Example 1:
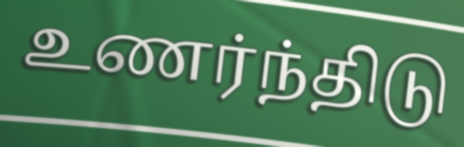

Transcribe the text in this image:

உணர்ந்திடு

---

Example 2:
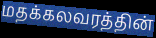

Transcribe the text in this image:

மதக்கலவரத்தின்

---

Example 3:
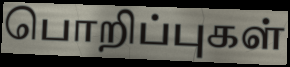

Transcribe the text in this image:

பொறிப்புகள்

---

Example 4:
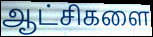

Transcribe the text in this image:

ஆட்சிகளை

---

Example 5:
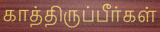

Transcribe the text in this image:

காத்திருப்பீர்கள்